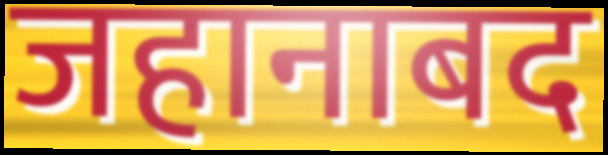
जहानाबद